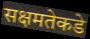
सक्षमतेकडे